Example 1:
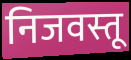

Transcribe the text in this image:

निजवस्तू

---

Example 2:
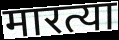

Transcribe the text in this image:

मारत्या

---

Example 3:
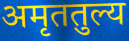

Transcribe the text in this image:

अमृततुल्य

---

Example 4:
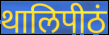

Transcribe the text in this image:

थालिपीठं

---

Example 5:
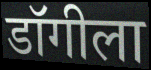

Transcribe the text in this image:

डॉगीला